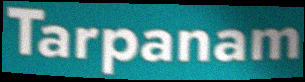
Tarpanam